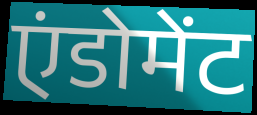
एंडोमेंट